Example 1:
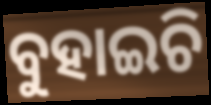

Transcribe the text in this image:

ବୁହାଇଚି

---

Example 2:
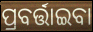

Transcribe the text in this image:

ପ୍ରବର୍ତ୍ତାଇବା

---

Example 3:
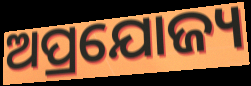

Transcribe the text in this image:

ଅପ୍ରଯୋଜ୍ୟ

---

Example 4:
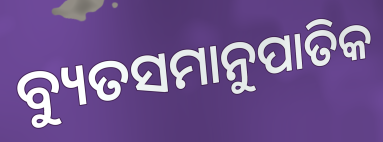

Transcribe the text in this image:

ବ୍ୟୁତସମାନୁପାତିକ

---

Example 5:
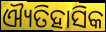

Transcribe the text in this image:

ଐ୍ୟତିହାସିକ